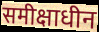
समीक्षाधीन